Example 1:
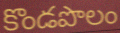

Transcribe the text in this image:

కొండపొలం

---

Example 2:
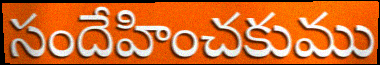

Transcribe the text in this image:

సందేహించకుము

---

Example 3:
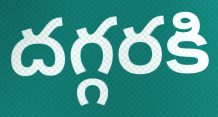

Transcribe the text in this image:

దగ్గరకి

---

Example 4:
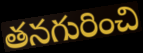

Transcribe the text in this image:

తనగురించి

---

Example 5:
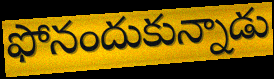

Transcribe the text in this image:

ఫోనందుకున్నాడు